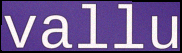
vallu